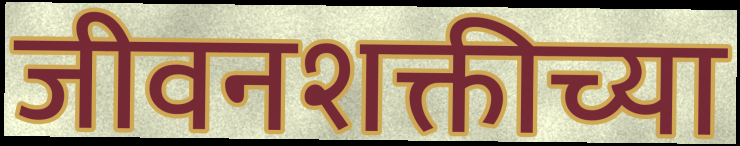
जीवनशक्तीच्या